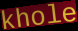
khole